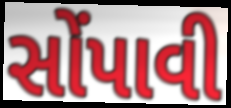
સોંપાવી